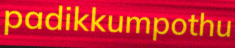
padikkumpothu